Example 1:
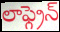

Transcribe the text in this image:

లాఫ్గ్రెన్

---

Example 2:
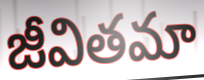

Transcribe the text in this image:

జీవితమా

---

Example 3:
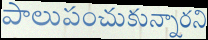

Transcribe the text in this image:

పాలుపంచుకున్నారని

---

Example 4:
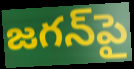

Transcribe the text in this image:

జగన్‌పై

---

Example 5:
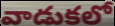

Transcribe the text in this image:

వాడుకలో